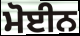
ਮੋਈਨ